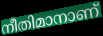
നീതിമാനാണ്